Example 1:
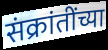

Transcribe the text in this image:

संक्रांतींच्या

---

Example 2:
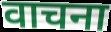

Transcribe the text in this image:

वाचना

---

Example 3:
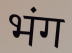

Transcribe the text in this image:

भंग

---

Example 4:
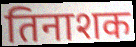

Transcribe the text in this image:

तिनाशक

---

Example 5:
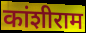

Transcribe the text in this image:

कांशीराम